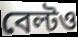
বেল্টও